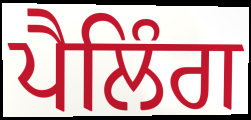
ਪੈਲਿੰਗ